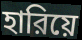
হারিয়ে